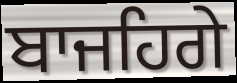
ਬਾਜਹਿਗੇ